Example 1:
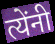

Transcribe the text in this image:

त्येंनी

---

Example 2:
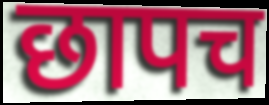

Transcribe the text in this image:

छापच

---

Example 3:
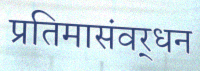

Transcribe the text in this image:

प्रतिमासंवर्धन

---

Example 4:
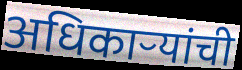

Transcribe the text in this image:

अधिकाऱ्यांची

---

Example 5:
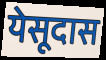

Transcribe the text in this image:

येसूदास